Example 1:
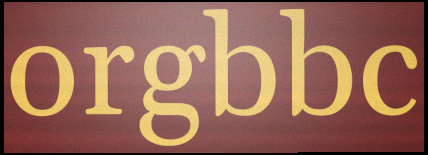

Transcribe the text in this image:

orgbbc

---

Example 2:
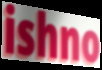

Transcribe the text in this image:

ishno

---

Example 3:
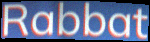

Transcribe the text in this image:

Rabbat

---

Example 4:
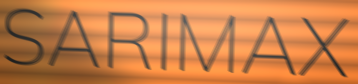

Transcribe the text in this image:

SARIMAX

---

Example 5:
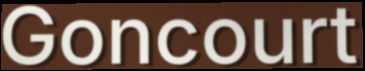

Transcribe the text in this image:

Goncourt